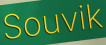
Souvik